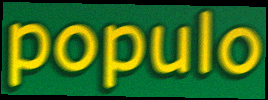
populo